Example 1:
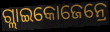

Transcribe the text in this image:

ଗ୍ଲାଇକୋଜେନ୍ରେ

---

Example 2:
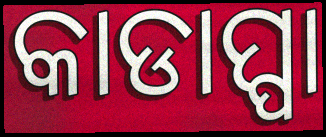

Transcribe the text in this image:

କାଡାପ୍ପା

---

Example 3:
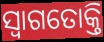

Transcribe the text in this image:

ସ୍ଵାଗତୋକ୍ତି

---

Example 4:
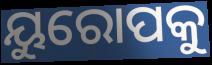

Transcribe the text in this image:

ୟୁରୋପକୁ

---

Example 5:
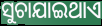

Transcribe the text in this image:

ସୁଚାଯାଇଥାଏ